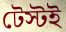
টেস্টই